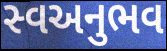
સ્વઅનુભવ